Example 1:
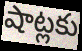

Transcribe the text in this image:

షాట్లకు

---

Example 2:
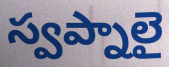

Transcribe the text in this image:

స్వప్నాలై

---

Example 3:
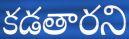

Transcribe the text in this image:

కడతారని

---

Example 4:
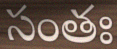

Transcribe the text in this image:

సంతః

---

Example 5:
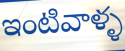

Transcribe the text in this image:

ఇంటివాళ్ళ